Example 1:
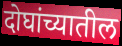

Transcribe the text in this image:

दोघांच्यातील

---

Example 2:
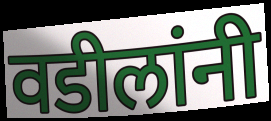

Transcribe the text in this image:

वडीलांनी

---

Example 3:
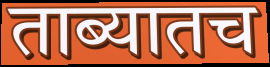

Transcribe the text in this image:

ताब्यातच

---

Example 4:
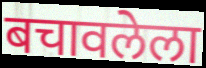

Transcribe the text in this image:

बचावलेला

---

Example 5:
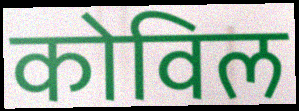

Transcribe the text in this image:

कोविल